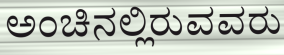
ಅಂಚಿನಲ್ಲಿರುವವರು